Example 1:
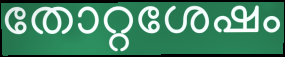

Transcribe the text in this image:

തോറ്റശേഷം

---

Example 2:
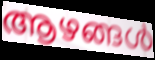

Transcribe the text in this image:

ആഴങ്ങൾ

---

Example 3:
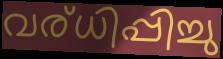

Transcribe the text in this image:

വര്ധിപ്പിച്ചു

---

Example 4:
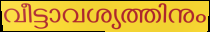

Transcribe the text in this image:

വീട്ടാവശ്യത്തിനും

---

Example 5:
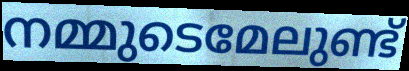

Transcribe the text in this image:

നമ്മുടെമേലുണ്ട്